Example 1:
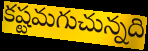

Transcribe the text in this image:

కష్టమగుచున్నది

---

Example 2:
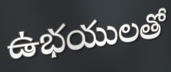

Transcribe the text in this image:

ఉభయులతో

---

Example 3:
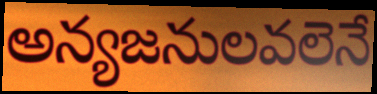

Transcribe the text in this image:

అన్యజనులవలెనే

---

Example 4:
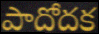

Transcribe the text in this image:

పాదోదక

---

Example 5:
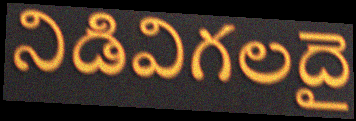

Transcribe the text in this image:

నిడివిగలదై